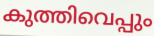
കുത്തിവെപ്പും